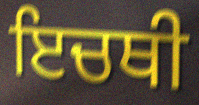
ਇਚਥੀ